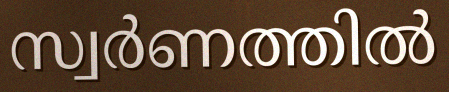
സ്വർണത്തിൽ